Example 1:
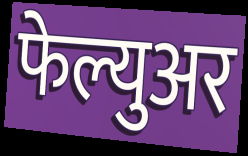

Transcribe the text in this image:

फेल्युअर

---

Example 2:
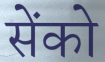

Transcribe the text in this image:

सेंको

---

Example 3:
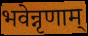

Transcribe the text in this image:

भवेन्नृणाम्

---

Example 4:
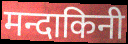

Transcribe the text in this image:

मन्दाकिनी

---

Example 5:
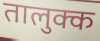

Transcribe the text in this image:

तालुक्क